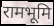
रामभूमि